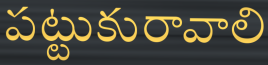
పట్టుకురావాలి